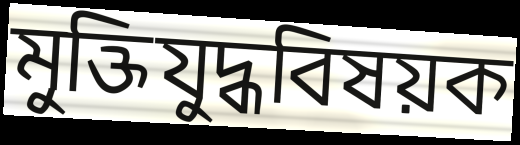
মুক্তিযুদ্ধবিষয়ক